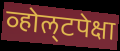
व्होल्टपेक्षा